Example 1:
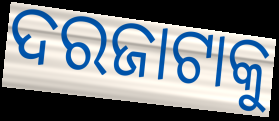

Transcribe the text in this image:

ଦରଜାଟାକୁ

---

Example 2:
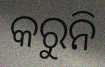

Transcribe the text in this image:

କରୁନି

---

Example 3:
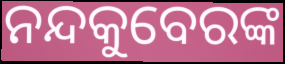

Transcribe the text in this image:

ନନ୍ଦକୁବେରଙ୍କ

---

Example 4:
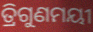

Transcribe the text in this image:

ତ୍ରିଗୁଣମୟୀ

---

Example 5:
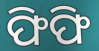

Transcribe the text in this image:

ଫିଫି